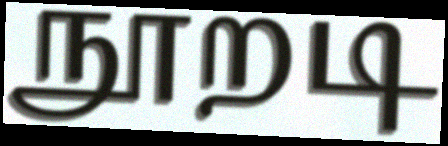
நூறடி